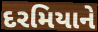
દરમિયાને